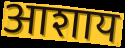
आशाय